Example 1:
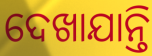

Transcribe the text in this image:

ଦେଖାଯାନ୍ତି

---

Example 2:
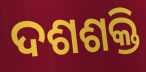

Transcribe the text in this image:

ଦଶଶକ୍ତି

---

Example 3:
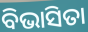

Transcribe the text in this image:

ବିଭାସିତା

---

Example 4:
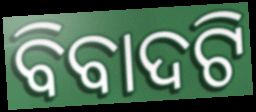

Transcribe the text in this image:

ବିବାଦଟି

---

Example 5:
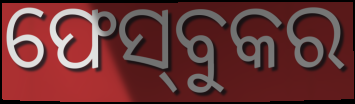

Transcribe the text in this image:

ଫେସ୍‌ବୁକର